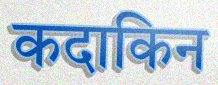
कदाकिन